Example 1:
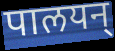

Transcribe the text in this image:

पालयन्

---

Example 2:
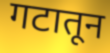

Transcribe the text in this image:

गटातून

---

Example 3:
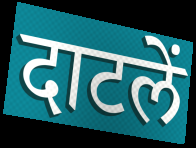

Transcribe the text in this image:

दाटलें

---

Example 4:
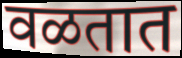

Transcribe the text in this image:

वळतात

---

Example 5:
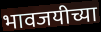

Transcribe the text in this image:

भावजयीच्या